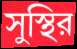
সুস্থির